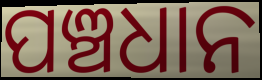
ପଞ୍ଚଧାନ